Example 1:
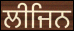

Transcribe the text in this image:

ਲੀਜਿਨ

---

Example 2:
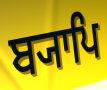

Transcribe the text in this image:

ਬ੍ਯਾਪਿ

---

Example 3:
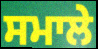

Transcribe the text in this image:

ਸਮਾਲੇ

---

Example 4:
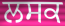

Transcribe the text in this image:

ਲਸਕ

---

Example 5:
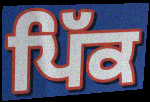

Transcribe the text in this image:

ਪਿੱਕ